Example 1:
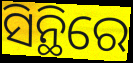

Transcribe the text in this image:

ସିନ୍ଥିରେ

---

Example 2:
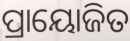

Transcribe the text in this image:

ପ୍ରାୟୋଜିତ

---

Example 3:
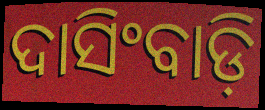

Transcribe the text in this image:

ଦାସିଂବାଡ଼ି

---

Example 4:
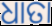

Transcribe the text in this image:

ଧାତା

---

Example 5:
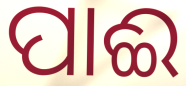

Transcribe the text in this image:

ପାଈ